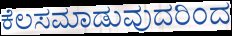
ಕೆಲಸಮಾಡುವುದರಿಂದ